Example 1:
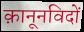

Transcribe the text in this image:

क़ानूनविदों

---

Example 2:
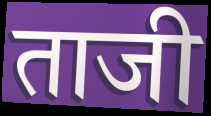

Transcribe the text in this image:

ताजी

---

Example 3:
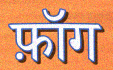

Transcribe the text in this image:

फ़ॉग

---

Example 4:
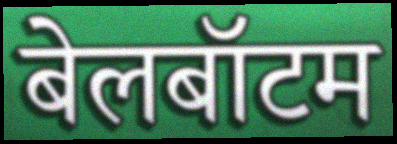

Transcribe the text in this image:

बेलबॉटम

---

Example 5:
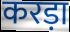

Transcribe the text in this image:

करड़ा